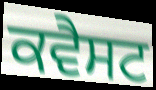
ਕਵੈਸਟ